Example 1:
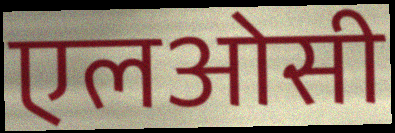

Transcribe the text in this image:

एलओसी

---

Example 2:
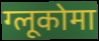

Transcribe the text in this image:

ग्लूकोमा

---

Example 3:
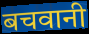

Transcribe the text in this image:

बचवानी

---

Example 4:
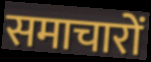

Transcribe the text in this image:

समाचारों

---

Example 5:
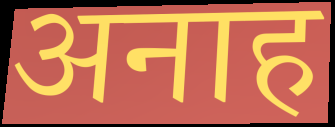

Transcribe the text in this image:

अनाह